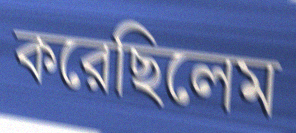
করেছিলেম